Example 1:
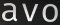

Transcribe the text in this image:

avo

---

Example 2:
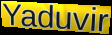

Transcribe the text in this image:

Yaduvir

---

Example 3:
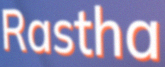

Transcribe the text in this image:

Rastha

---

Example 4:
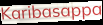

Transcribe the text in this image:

Karibasappa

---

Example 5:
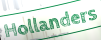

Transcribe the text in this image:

Hollanders